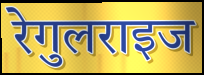
रेगुलराइज